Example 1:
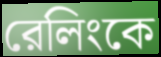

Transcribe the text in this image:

রেলিংকে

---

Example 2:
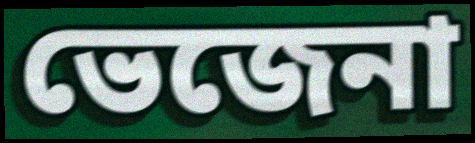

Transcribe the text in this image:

ভেজেনা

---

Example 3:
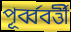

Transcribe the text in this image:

পূর্ব্ববর্ত্তী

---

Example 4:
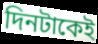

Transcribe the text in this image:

দিনটাকেই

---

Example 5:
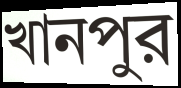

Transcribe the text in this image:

খানপুর